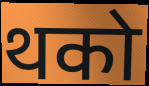
थको